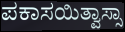
ಪಕಾಸಯಿತ್ವಾಸ್ಸಾ